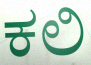
ಕಲಿ